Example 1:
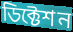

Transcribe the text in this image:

ডিক্টেশন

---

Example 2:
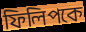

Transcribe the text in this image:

ফিলিপকে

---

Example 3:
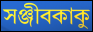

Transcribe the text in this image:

সঞ্জীবকাকু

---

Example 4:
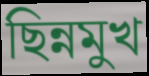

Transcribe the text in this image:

ছিন্নমুখ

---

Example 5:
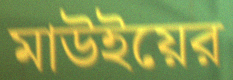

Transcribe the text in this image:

মাউইয়ের